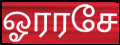
ஓரரசே